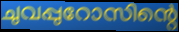
ചുവപ്പുറോസിന്റെ